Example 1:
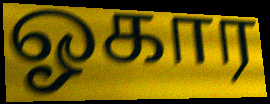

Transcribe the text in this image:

ஓகார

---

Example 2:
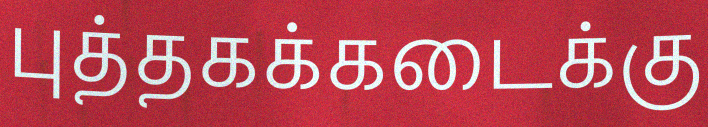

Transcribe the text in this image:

புத்தகக்கடைக்கு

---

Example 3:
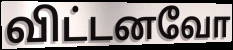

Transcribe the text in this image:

விட்டனவோ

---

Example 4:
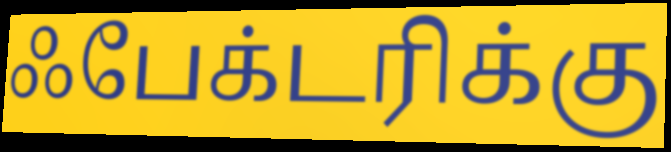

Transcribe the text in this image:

ஃபேக்டரிக்கு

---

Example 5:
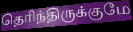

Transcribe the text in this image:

தெரிந்திருக்குமே